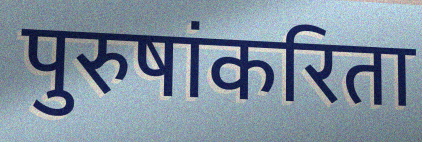
पुरुषांकरिता